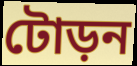
টোড়ন